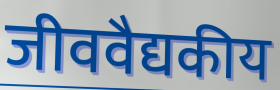
जीववैद्यकीय